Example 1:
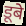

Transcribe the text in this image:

डूबे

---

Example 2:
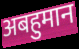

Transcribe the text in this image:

अबहुमान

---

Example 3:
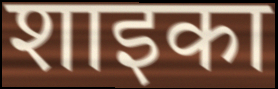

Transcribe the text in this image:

शाइका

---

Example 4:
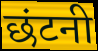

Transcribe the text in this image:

छंटनी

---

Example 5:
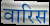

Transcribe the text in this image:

वारिस